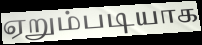
ஏறும்படியாக